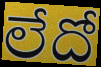
లేదో